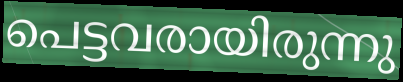
പെട്ടവരായിരുന്നു